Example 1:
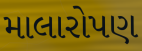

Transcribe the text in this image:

માલારોપણ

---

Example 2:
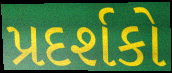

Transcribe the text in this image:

પ્રદર્શકો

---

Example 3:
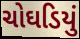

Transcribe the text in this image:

ચોઘડિયું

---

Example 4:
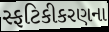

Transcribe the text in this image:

સ્ફટિકીકરણના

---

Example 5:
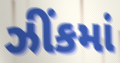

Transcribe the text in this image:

ઝીંકમાં